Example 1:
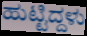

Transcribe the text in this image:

ಹುಟ್ಟಿದ್ದಳು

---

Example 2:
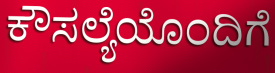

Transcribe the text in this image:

ಕೌಸಲ್ಯೆಯೊಂದಿಗೆ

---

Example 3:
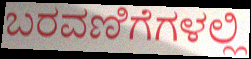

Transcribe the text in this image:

ಬರವಣಿಗೆಗಳಲ್ಲಿ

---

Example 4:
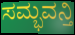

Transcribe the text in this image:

ಸಮ್ಭವನ್ತಿ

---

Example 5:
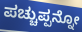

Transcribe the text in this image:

ಪಚ್ಚುಪ್ಪನ್ನೋ